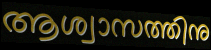
ആശ്വാസത്തിനു